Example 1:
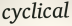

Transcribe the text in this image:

cyclical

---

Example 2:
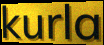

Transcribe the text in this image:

kurla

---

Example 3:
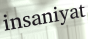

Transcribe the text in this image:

insaniyat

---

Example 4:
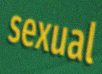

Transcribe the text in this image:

sexual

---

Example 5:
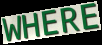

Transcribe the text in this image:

WHERE